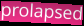
prolapsed